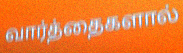
வார்த்தைகளால்